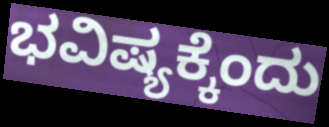
ಭವಿಷ್ಯಕ್ಕೆಂದು